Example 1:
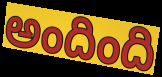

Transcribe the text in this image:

అందింది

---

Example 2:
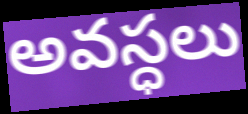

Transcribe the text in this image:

అవస్ధలు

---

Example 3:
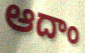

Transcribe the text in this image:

ఆదాం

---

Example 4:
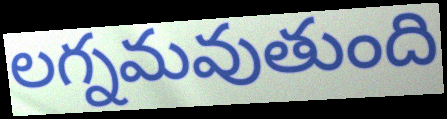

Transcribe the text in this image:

లగ్నమవుతుంది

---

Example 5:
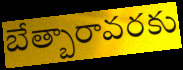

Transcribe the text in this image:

బేత్బారావరకు